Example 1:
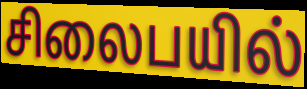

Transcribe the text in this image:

சிலைபயில்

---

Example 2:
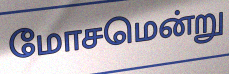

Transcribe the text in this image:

மோசமென்று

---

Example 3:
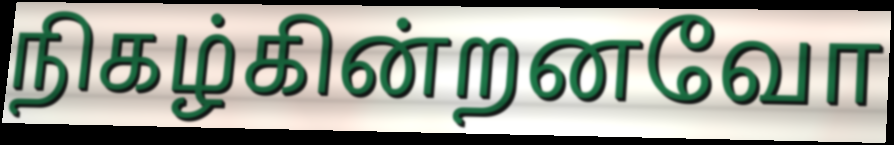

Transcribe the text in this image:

நிகழ்கின்றனவோ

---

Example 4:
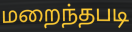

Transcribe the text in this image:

மறைந்தபடி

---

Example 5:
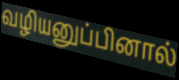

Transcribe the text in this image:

வழியனுப்பினால்